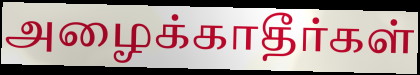
அழைக்காதீர்கள்